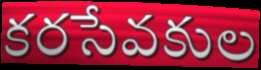
కరసేవకుల